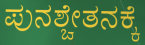
ಪುನಶ್ಚೇತನಕ್ಕೆ